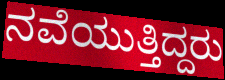
ನವೆಯುತ್ತಿದ್ದರು